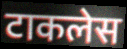
टाकलेस